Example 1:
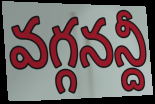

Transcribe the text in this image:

వగ్గనన్దీ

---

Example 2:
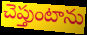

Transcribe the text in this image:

చెప్తుంటాను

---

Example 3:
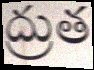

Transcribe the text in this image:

ద్రుత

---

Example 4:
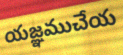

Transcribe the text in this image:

యజ్ఞముచేయ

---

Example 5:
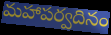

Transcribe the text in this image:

మహాపర్వదినం